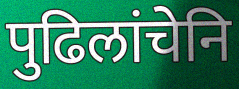
पुढिलांचेनि